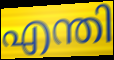
എന്തി